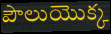
పౌలుయొక్క